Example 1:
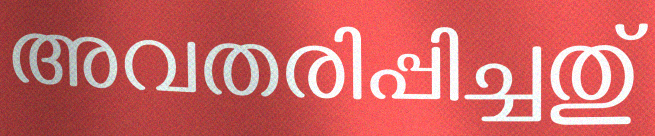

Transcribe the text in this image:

അവതരിപ്പിച്ചതു്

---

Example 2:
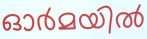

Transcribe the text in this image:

ഓർമയിൽ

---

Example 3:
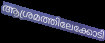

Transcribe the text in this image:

ആശ്രമത്തിലേക്കോടി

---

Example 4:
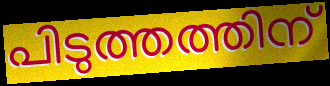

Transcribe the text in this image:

പിടുത്തത്തിന്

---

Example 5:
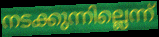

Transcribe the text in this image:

നടക്കുന്നില്ലെന്ന്